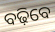
ବଢ଼ିବେ